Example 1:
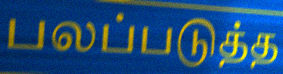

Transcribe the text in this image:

பலப்படுத்த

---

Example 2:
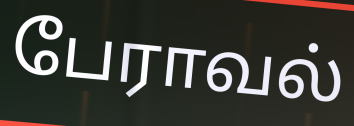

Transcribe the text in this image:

பேராவல்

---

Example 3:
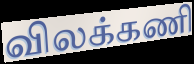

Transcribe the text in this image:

விலக்கணி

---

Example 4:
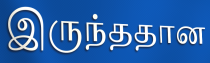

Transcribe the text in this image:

இருந்ததான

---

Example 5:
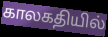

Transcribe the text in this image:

காலகதியில்